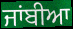
ਜਾਂਬੀਆ